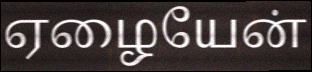
ஏழையேன்